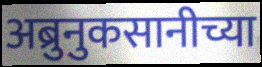
अब्रुनुकसानीच्या